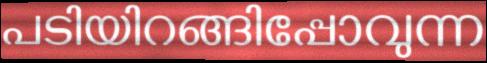
പടിയിറങ്ങിപ്പോവുന്ന